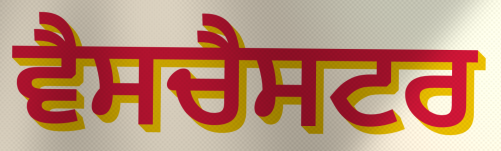
ਵੈਸਚੈਸਟਰ